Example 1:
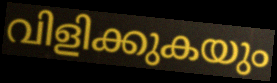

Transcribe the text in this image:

വിളിക്കുകയും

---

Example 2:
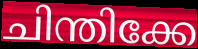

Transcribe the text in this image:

ചിന്തിക്കേ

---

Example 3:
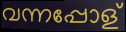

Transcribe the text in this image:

വന്നപ്പോള്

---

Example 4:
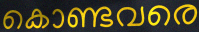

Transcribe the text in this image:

കൊണ്ടവരെ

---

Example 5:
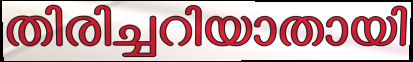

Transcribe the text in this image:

തിരിച്ചറിയാതായി